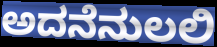
ಅದನೆನುಲಲಿ